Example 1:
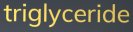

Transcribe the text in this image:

triglyceride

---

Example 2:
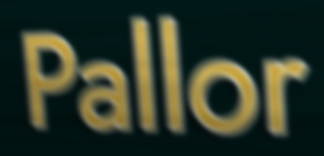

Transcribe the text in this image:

Pallor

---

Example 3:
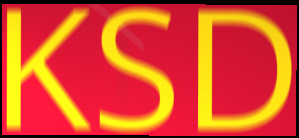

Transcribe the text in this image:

KSD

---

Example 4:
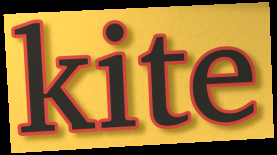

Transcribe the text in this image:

kite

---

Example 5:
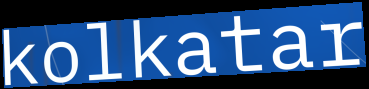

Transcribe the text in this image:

kolkatar